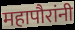
महापौरांनी